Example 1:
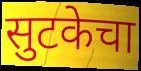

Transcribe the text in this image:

सुटकेचा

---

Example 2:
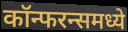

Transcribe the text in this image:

कॉन्फरन्समध्ये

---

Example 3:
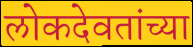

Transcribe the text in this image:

लोकदेवतांच्या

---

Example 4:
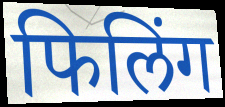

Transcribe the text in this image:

फिलिंग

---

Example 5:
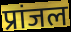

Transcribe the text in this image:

प्रांजल